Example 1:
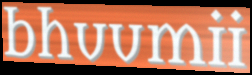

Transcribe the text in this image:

bhuumii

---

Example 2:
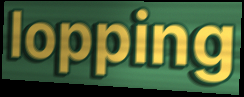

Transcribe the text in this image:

lopping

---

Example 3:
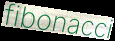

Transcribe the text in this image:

fibonacci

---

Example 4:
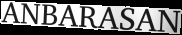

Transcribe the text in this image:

ANBARASAN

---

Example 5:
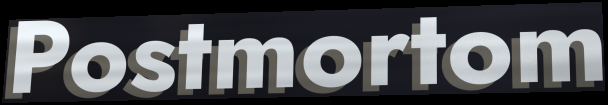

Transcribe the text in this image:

Postmortom